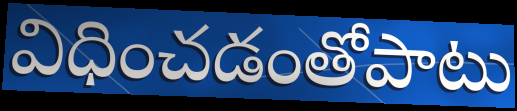
విధించడంతోపాటు